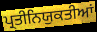
ਪ੍ਰਤੀਨਿਯੁਕਤੀਆਂ